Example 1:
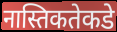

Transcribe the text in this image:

नास्तिकतेकडे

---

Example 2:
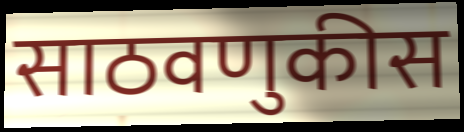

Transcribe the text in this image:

साठवणुकीस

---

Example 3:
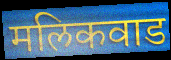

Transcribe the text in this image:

मलिकवाड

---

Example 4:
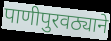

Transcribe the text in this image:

पाणीपुरवठ्याने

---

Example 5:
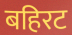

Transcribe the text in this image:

बहिरट